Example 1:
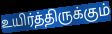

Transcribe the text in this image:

உயிர்த்திருக்கும்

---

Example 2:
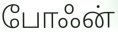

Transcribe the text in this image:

போஃன்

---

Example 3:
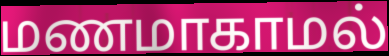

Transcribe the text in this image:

மணமாகாமல்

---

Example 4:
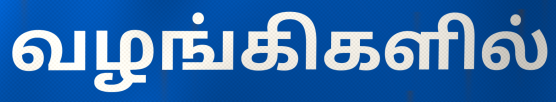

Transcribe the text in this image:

வழங்கிகளில்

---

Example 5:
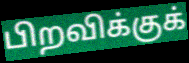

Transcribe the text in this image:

பிறவிக்குக்